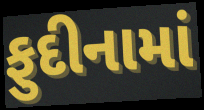
ફુદીનામાં